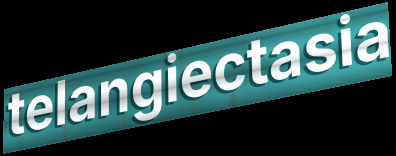
telangiectasia